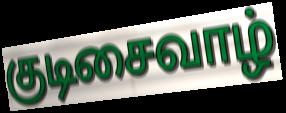
குடிசைவாழ்